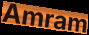
Amram